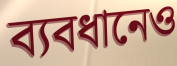
ব্যবধানেও